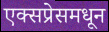
एक्सप्रेसमधून